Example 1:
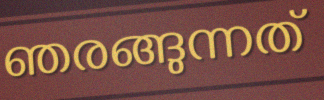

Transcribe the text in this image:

ഞരങ്ങുന്നത്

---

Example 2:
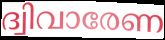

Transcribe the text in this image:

ദ്വിവാരേണ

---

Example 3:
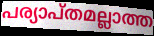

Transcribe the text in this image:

പര്യാപ്തമല്ലാത്ത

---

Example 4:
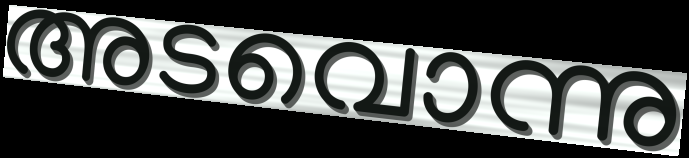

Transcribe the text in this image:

അടവൊന്നു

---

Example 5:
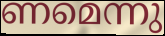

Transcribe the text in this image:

ണമെന്നു